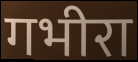
गभीरा